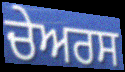
ਚੇਅਰਸ